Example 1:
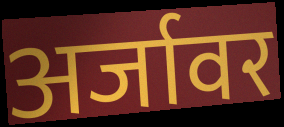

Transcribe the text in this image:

अर्जावर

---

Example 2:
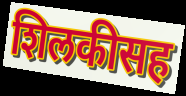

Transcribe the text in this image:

शिलकीसह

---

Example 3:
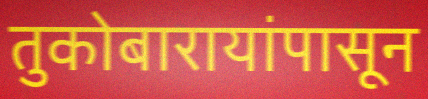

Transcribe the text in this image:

तुकोबारायांपासून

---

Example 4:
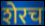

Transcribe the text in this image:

शेरच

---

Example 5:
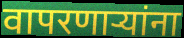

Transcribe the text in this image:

वापरणाऱ्यांना